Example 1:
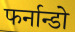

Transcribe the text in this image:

फर्नान्डो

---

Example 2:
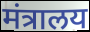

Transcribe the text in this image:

मंत्रालय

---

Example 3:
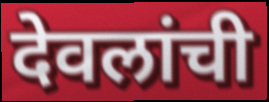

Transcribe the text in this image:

देवलांची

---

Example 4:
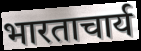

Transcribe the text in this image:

भारताचार्य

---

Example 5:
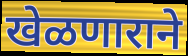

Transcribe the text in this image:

खेळणाराने